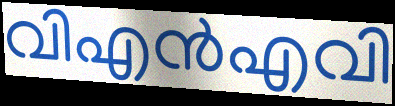
വിഎൻഎവി